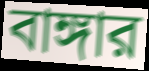
বাঙ্গার